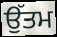
ਉੱਤਮ